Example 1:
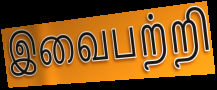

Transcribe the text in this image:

இவைபற்றி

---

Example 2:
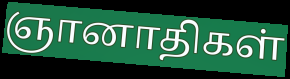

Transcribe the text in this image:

ஞானாதிகள்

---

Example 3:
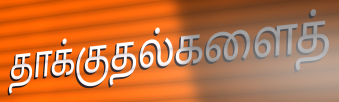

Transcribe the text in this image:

தாக்குதல்களைத்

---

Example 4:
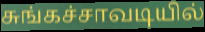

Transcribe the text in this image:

சுங்கச்சாவடியில்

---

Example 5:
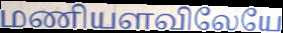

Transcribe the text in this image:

மணியளவிலேயே